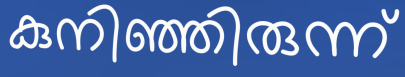
കുനിഞ്ഞിരുന്ന്